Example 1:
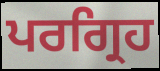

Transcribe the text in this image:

ਪਰਗ੍ਰਿਹ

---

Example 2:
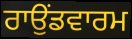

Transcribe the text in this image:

ਰਾਉਂਡਵਾਰਮ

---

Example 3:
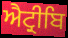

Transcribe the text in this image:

ਐਟ੍ਰੀਬਿ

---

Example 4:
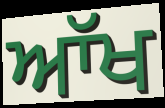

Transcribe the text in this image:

ਆੱਖ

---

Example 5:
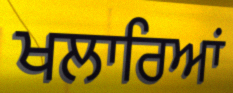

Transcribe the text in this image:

ਖਲਾਰਿਆਂ